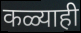
कळ्याही